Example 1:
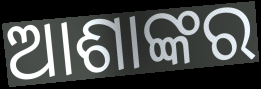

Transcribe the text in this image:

ଆଶାଙ୍କର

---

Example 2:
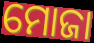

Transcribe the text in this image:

ମୋଜା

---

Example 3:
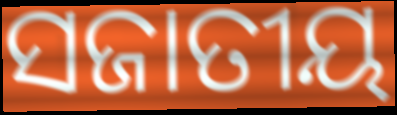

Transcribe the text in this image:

ସଜାତୀୟ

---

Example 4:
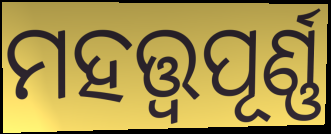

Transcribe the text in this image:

ମହତ୍ତ୍ଵପୂର୍ଣ୍ଣ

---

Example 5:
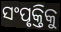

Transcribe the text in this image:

ସଂପୃକ୍ତିକୁ